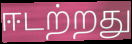
ஈடற்றது